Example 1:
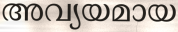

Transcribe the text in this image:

അവ്യയമായ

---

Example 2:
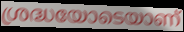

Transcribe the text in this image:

ശ്രദ്ധയോടെയാണ്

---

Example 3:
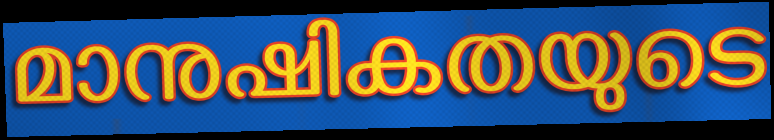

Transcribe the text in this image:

മാനുഷികതയുടെ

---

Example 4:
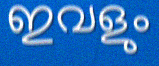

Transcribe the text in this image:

ഇവളും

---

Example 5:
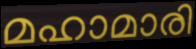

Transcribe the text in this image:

മഹാമാരി